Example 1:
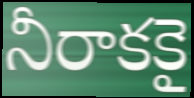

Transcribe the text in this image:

నీరాకకై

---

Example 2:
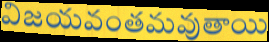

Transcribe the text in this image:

విజయవంతమవుతాయి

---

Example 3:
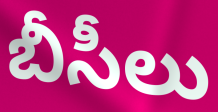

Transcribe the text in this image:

బీసీలు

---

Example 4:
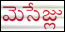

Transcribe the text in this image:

మెసేజ్లు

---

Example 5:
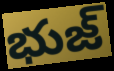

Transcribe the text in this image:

భుజ్